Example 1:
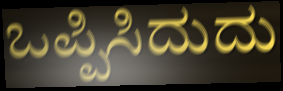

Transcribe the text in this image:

ಒಪ್ಪಿಸಿದುದು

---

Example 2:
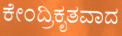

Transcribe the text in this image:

ಕೇಂದ್ರಿಕೃತವಾದ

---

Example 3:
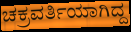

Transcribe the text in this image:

ಚಕ್ರವರ್ತಿಯಾಗಿದ್ದ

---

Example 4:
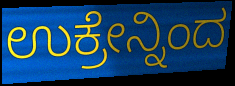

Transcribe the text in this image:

ಉಕ್ರೇನ್ನಿಂದ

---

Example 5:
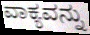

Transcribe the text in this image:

ವಾಕ್ಯವನ್ನು